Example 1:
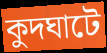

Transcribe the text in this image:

কুদঘাটে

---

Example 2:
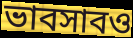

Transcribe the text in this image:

ভাবসাবও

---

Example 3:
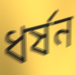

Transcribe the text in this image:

ধর্ষন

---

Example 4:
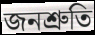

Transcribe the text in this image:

জনশ্রুতি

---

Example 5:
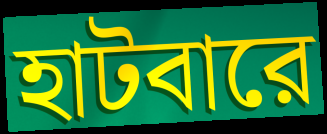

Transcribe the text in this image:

হাটবারে